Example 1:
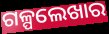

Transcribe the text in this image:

ଗଳ୍ପଲେଖାର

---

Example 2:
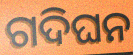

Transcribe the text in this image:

ଗଦିଘନ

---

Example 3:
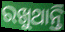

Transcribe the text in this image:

ରଖୁଥାନ୍ତି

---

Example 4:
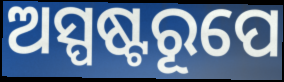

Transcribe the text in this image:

ଅସ୍ପଷ୍ଟରୂପେ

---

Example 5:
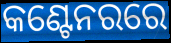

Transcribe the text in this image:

କଣ୍ଟେନରରେ